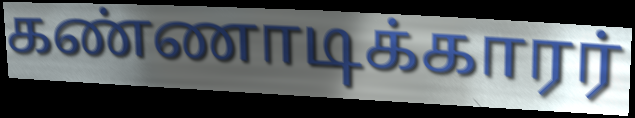
கண்ணாடிக்காரர்